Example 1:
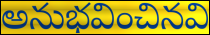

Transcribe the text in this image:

అనుభవించినవి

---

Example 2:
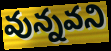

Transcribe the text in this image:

వున్నవని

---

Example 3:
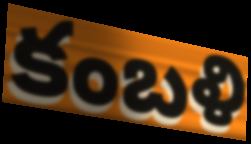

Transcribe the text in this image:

కంబళి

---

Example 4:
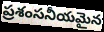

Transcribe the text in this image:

ప్రశంసనీయమైన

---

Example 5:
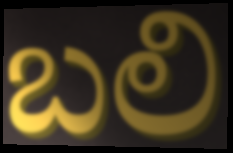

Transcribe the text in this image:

బలి